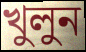
খুলুন